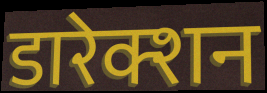
डारेक्शन